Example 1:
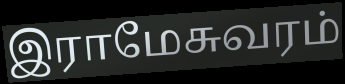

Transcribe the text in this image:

இராமேசுவரம்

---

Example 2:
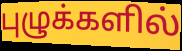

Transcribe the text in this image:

புழுக்களில்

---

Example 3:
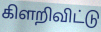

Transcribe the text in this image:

கிளறிவிட்டு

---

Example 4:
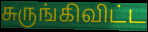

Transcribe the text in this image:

சுருங்கிவிட்ட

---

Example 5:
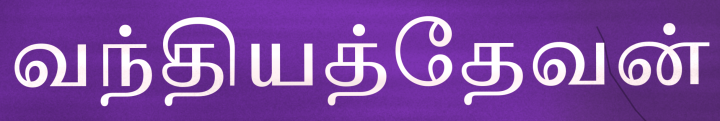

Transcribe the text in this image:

வந்தியத்தேவன்